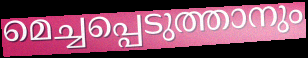
മെച്ചപ്പെടുത്താനും